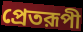
প্রেতরূপী